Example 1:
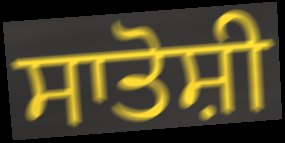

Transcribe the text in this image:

ਸਾਤੋਸ਼ੀ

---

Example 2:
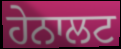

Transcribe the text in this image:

ਹੇਨਾਲਟ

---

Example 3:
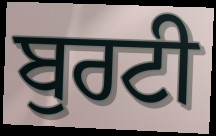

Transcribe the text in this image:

ਬੁਰਟੀ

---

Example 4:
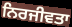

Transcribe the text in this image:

ਨਿਰਜੀਵਤਾ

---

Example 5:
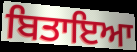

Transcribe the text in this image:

ਬਿਤਾਇਆ